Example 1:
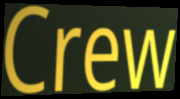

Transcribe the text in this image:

Crew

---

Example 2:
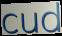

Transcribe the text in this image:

cud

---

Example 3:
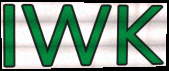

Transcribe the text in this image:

IWK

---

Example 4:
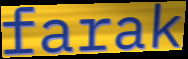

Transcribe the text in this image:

farak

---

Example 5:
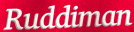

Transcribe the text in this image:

Ruddiman